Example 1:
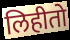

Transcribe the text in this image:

लिहीतो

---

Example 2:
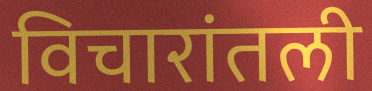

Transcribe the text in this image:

विचारांतली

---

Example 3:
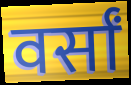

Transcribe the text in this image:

वर्सां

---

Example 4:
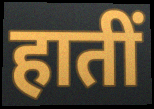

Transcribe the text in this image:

हातीं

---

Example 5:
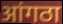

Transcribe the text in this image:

आंगठा